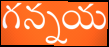
గన్నయ